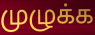
முழுக்க